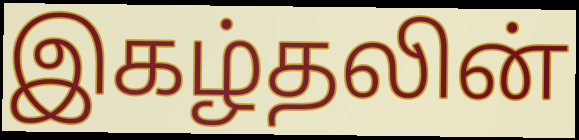
இகழ்தலின்